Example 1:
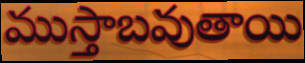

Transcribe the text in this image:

ముస్తాబవుతాయి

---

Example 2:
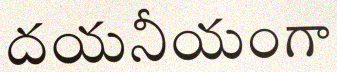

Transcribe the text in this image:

దయనీయంగా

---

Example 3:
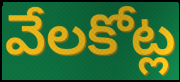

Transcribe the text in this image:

వేలకోట్ల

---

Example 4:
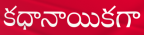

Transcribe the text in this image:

కధానాయికగా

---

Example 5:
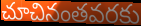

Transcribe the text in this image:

చూచినంతవరకు